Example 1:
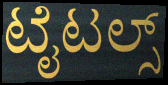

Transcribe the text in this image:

ಟೈಟಲ್ಸ್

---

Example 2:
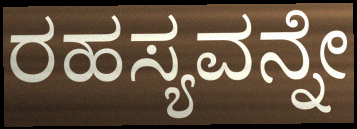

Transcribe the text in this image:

ರಹಸ್ಯವನ್ನೇ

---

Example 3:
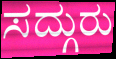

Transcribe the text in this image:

ಸದ್ಗುರು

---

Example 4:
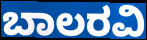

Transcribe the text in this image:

ಬಾಲರವಿ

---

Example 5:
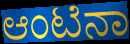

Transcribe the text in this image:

ಆಂಟೆನಾ